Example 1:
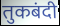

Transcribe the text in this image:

तुकबंदी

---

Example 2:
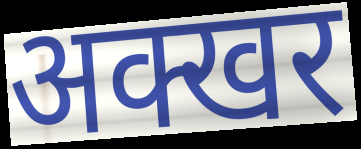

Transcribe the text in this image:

अक्खर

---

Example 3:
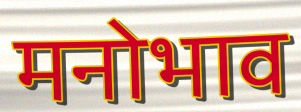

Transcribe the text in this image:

मनोभाव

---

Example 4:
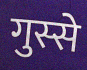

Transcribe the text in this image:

गुस्‍से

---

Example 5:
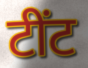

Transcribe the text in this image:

टींट